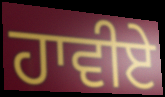
ਹਾਵੀਏ